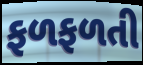
ફળફળતી